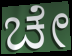
ಚೇ